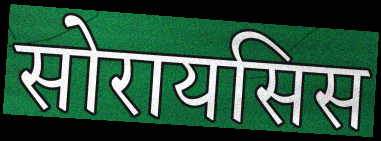
सोरायसिस